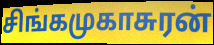
சிங்கமுகாசுரன்